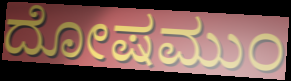
ದೋಷಮುಂ